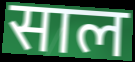
साल